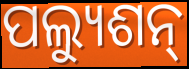
ପଲ୍ୟୁଶନ୍